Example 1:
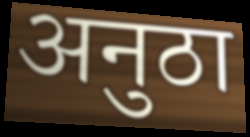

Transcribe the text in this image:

अनुठा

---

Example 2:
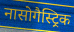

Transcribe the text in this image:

नासोगैस्ट्रिक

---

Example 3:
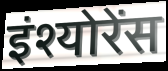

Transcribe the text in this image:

इंश्योरेंस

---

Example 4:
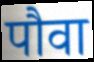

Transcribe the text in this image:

पौवा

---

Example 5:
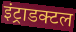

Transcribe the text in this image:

इंट्राडक्टल